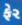
ફેર